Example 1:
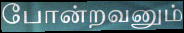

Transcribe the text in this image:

போன்றவனும்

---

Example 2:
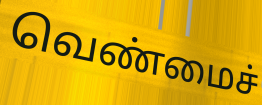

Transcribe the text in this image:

வெண்மைச்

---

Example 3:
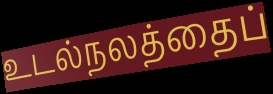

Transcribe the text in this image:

உடல்நலத்தைப்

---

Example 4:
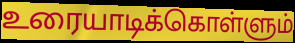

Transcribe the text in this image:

உரையாடிக்கொள்ளும்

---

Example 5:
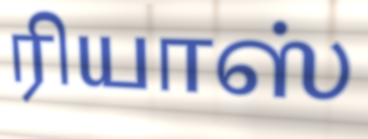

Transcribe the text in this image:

ரியாஸ்